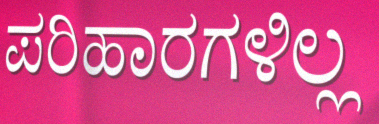
ಪರಿಹಾರಗಳಿಲ್ಲ